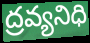
ద్రవ్యనిధి